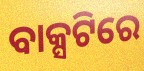
ବାକ୍ସଟିରେ